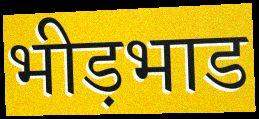
भीड़भाड